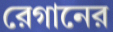
রেগানের